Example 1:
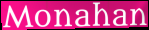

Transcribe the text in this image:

Monahan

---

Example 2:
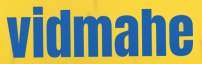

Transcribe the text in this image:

vidmahe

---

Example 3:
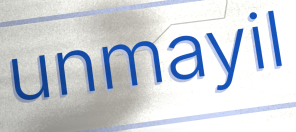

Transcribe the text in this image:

unmayil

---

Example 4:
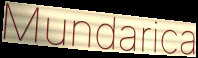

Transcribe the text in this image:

Mundarica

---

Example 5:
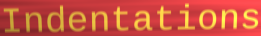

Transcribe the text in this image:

Indentations